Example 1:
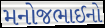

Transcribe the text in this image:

મનોજભાઈનો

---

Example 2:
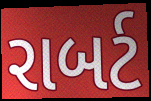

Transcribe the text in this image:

રાબર્ટ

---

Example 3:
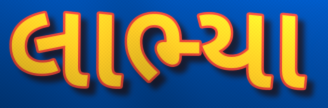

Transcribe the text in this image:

લાભ્યા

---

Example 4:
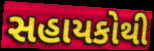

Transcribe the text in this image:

સહાયકોથી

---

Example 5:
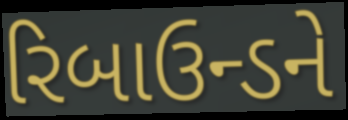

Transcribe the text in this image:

રિબાઉન્ડને